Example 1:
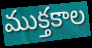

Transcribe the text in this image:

ముక్తకాల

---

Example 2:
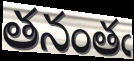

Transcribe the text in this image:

తనంతఁ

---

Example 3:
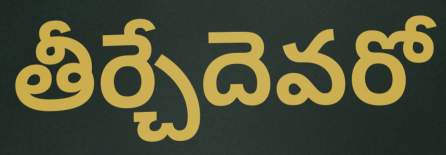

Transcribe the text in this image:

తీర్చేదెవరో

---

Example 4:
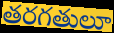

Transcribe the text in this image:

తరగతులూ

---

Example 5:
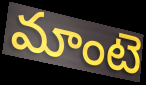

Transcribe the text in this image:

మాంటె